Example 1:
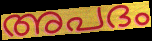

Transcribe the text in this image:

അപദം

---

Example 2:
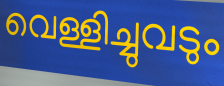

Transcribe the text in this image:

വെള്ളിച്ചുവടും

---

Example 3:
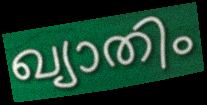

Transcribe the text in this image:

ഖ്യാതിം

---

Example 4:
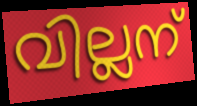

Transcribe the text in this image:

വില്ലന്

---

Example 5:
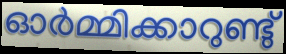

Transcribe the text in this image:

ഓർമ്മിക്കാറുണ്ടു്